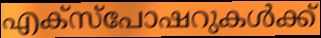
എക്സ്പോഷറുകൾക്ക്